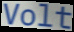
Volt